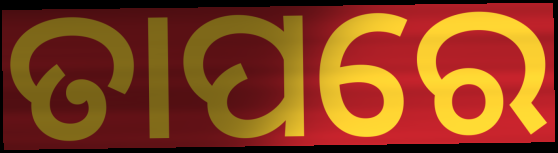
ତାପରେ